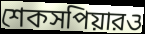
শেকসপিয়ারও